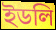
ইডলি